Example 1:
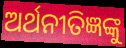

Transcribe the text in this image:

ଅର୍ଥନୀତିଜ୍ଞଙ୍କୁ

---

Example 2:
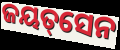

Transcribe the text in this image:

ଜୟତ୍‌ସେନ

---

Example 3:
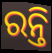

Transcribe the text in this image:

ରନ୍ତି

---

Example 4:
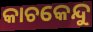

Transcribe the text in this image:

କାଚକେନ୍ଦୁ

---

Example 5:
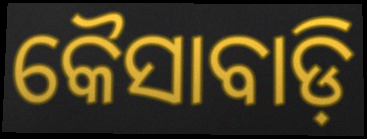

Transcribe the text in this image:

କୈସାବାଡ଼ି